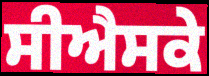
ਸੀਐਸਕੇ